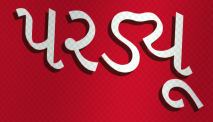
પરડ્યૂ